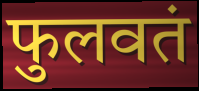
फुलवतं